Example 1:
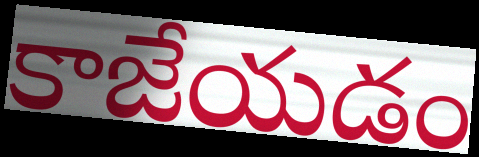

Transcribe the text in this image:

కాజేయడం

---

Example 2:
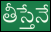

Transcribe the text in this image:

తీస్తేనే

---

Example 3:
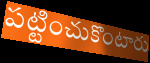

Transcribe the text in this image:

పట్టించుకొంటారు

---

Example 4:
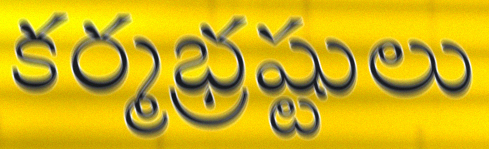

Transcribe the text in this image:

కర్మభ్రష్టులు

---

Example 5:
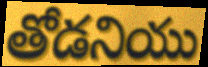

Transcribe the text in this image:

తోడనియు